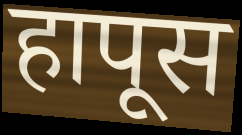
हापूस